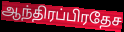
ஆந்திரப்பிரதேச